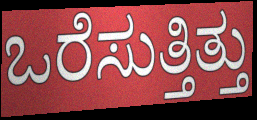
ಒರೆಸುತ್ತಿತ್ತು